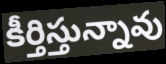
కీర్తిస్తున్నావు